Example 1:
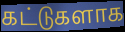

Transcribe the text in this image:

கட்டுகளாக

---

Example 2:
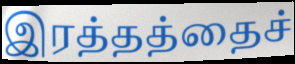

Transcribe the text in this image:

இரத்தத்தைச்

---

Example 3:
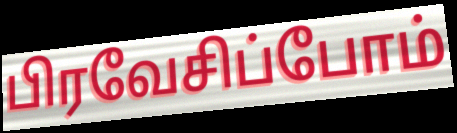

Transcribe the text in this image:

பிரவேசிப்போம்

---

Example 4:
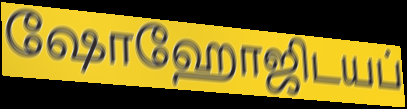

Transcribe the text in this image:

ஷோஹோஜிடயப்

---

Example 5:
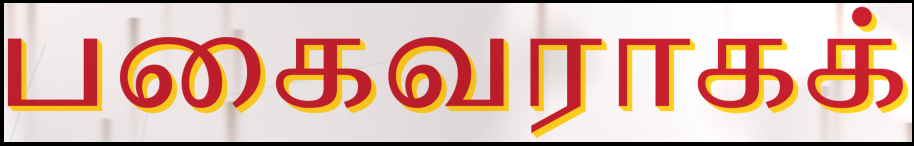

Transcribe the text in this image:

பகைவராகக்